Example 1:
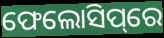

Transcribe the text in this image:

ଫେଲୋସିପ୍‌ରେ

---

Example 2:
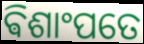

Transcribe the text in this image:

ଵିଶାଂପତେ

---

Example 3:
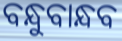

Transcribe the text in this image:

ବନ୍ଧୁବାନ୍ଧବ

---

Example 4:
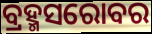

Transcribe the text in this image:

ବ୍ରହ୍ମସରୋବର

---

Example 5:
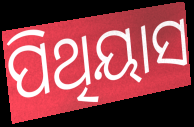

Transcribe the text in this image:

ପିଥିୟାସ